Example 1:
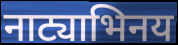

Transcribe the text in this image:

नाट्याभिनय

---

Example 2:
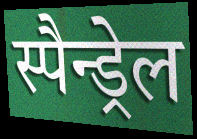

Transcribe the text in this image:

स्पैन्ड्रेल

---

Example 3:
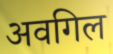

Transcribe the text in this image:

अवगिल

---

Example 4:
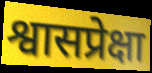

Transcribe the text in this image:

श्वासप्रेक्षा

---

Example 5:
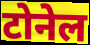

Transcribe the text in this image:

टोनेल